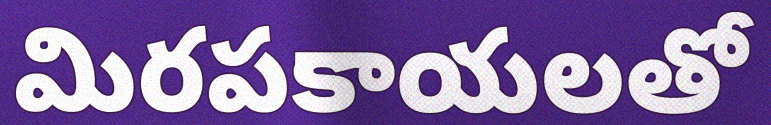
మిరపకాయలతో